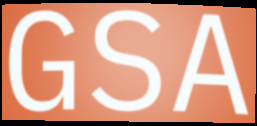
GSA